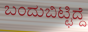
ಬಂದುಬಿಟ್ಟಿದ್ದೆ